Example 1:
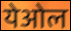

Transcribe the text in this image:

येओल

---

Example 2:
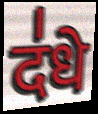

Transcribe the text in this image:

द॑धे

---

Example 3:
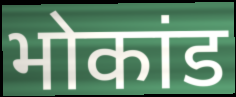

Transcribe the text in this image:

भोकांड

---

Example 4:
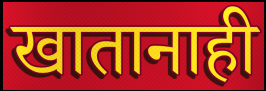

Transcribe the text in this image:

खातानाही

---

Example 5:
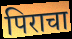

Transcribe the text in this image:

पिराचा